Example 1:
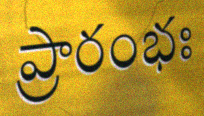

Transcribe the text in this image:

ప్రారంభః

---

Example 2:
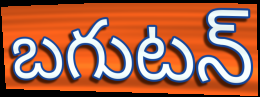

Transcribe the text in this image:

బగుటన్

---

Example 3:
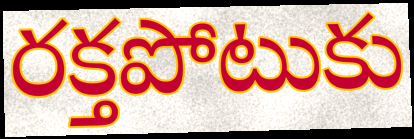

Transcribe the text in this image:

రక్తపోటుకు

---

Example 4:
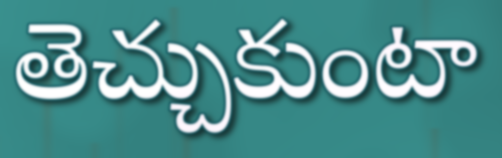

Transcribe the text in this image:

తెచ్చుకుంటా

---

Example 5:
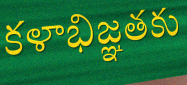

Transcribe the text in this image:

కళాభిజ్ఞతకు